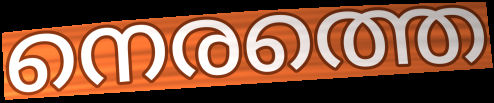
നെരത്തെ